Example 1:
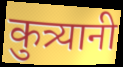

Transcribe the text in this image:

कुत्र्यानी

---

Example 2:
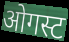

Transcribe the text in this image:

ओगस्ट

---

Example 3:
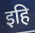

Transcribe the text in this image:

इहि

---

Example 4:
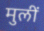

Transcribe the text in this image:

मुलीं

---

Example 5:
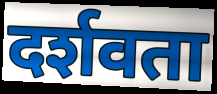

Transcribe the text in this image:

दर्शवता